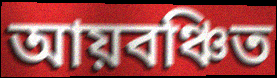
আয়বঞ্চিত